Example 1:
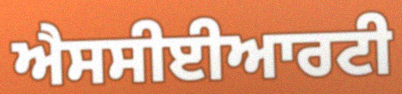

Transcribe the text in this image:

ਐਸਸੀਈਆਰਟੀ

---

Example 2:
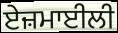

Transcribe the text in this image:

ਏਜ਼ਮਾਈਲੀ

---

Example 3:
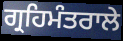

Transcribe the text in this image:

ਗ੍ਰਹਿਮੰਤਰਾਲੇ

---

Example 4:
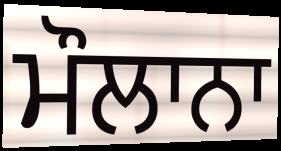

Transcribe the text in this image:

ਮੌਲਾਨਾ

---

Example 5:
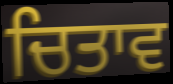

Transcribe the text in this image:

ਚਿਤਾਵ